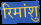
रिमांशु